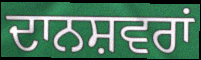
ਦਾਨਸ਼ਵਰਾਂ